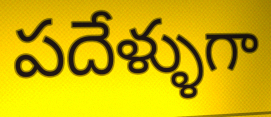
పదేళ్ళుగా